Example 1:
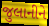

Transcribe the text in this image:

જુલાનીને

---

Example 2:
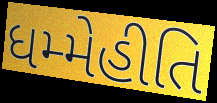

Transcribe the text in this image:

ધમ્મેહીતિ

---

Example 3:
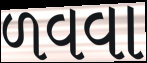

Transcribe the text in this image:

ળવવા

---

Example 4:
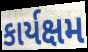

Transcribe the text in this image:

કાર્યક્ષમ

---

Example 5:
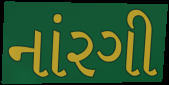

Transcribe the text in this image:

નાંરગી